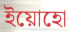
ইয়োহো